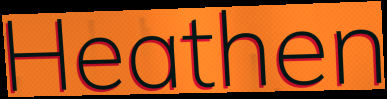
Heathen